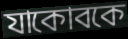
যাকোবকে